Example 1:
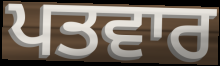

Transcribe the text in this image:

ਪਤਵਾਰ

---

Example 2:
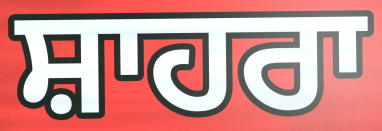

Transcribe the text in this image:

ਸ਼ਾਹਰਾ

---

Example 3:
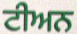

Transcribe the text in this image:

ਟੀਅਨ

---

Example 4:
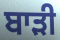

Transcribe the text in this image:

ਬਾੜੀ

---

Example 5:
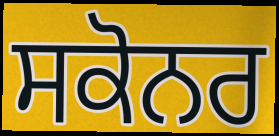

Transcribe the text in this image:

ਸਕੋਨਰ